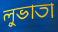
লুভাতা